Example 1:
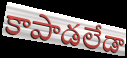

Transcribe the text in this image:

కాపాడలేడా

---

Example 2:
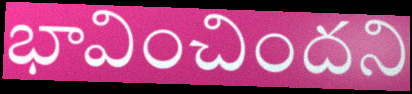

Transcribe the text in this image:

భావించిందని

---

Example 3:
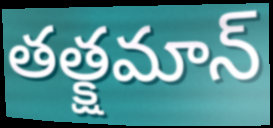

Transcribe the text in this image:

తత్క్షమాన్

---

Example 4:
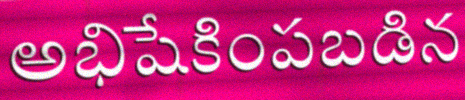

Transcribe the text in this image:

అభిషేకింపబడిన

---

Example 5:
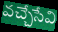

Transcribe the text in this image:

వచ్చేసేవి